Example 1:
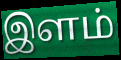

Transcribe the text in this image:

இளம்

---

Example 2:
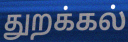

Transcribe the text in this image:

துறக்கல்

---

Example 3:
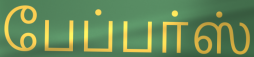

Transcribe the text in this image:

பேப்பர்ஸ்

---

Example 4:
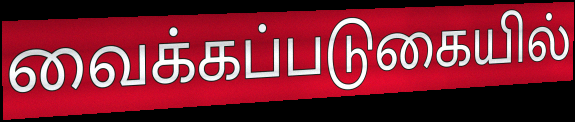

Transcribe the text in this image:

வைக்கப்படுகையில்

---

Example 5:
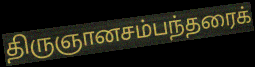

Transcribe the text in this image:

திருஞானசம்பந்தரைக்